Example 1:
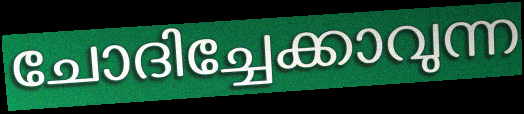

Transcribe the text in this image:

ചോദിച്ചേക്കാവുന്ന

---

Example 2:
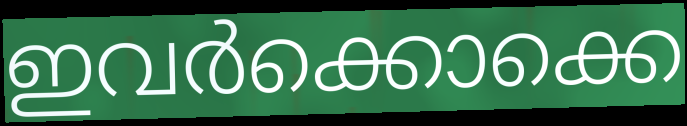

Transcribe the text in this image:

ഇവർക്കൊക്കെ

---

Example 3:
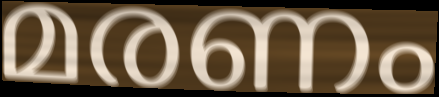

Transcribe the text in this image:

മരണം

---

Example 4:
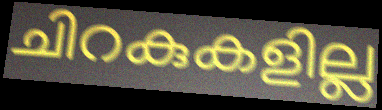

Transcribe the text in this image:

ചിറകുകളില്ല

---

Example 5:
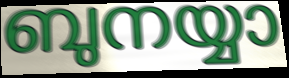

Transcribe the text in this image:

ബുനയ്യാ